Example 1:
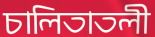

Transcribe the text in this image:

চালিতাতলী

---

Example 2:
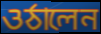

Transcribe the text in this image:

ওঠালেন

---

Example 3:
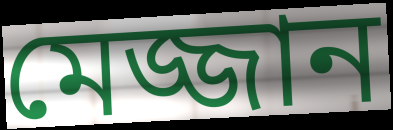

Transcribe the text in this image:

মেজ্জান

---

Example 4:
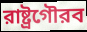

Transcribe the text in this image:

রাষ্ট্রগৌরব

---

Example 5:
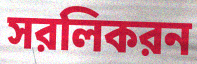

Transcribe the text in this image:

সরলিকরন